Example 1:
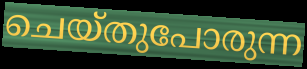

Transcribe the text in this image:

ചെയ്തുപോരുന്ന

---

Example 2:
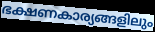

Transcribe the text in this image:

ഭക്ഷണകാര്യങ്ങളിലും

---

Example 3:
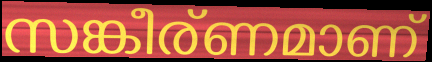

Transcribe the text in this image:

സങ്കീര്ണമാണ്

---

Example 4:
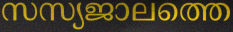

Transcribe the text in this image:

സസ്യജാലത്തെ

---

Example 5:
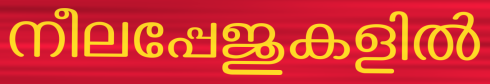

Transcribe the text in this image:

നീലപ്പേജുകളിൽ